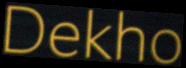
Dekho